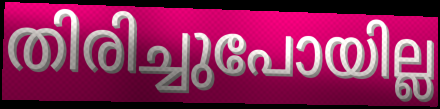
തിരിച്ചുപോയില്ല